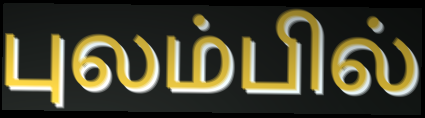
புலம்பில்